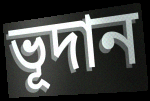
ভূদান